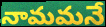
నామమనే